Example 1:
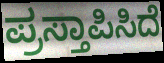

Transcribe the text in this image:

ಪ್ರಸ್ತಾಪಿಸಿದೆ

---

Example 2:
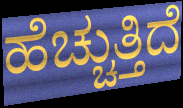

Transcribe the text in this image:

ಹೆಚ್ಚುತ್ತಿದೆ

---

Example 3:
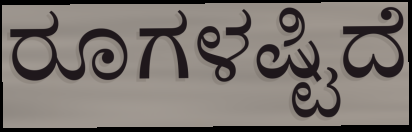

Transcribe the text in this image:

ರೂಗಳಷ್ಟಿದೆ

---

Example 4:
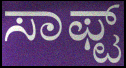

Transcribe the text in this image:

ಸಾಫ್ಟ್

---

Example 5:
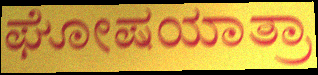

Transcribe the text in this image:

ಘೋಷಯಾತ್ರಾ